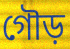
গৌড়